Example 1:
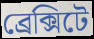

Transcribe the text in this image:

ব্রেক্সিটে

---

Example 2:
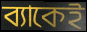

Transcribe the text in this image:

ব্যাকেই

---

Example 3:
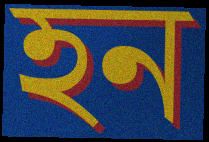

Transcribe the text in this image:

হন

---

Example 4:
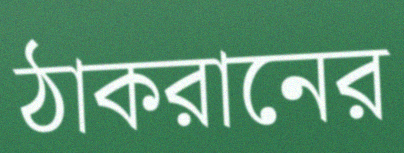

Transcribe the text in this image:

ঠাকরানের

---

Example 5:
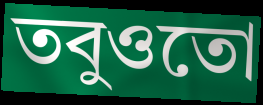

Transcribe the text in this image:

তবুওতো